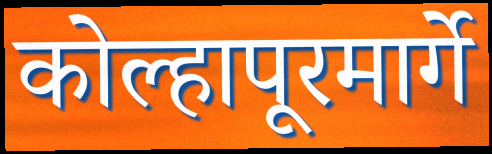
कोल्हापूरमार्गे